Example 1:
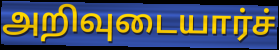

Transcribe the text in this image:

அறிவுடையார்ச்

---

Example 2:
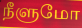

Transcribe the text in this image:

நீளுமோ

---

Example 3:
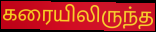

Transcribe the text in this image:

கரையிலிருந்த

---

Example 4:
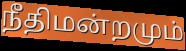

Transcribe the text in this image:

நீதிமன்றமும்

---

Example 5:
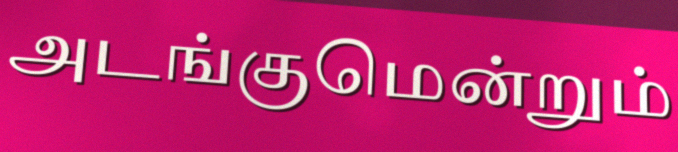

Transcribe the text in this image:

அடங்குமென்றும்